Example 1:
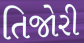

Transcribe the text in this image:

તિજોરી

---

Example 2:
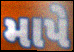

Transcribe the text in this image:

માપે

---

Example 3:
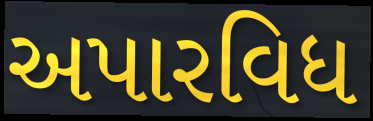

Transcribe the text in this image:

અપારવિધ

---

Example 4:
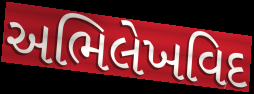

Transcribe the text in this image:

અભિલેખવિદ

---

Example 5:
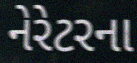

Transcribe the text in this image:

નેરેટરના